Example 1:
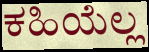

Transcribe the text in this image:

ಕಹಿಯೆಲ್ಲ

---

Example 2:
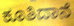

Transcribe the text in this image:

ಕೂತಿದಾನೆ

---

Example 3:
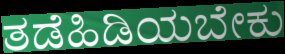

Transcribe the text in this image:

ತಡೆಹಿಡಿಯಬೇಕು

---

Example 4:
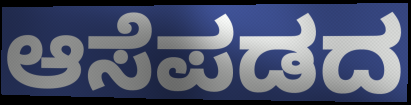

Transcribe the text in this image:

ಆಸೆಪಡದ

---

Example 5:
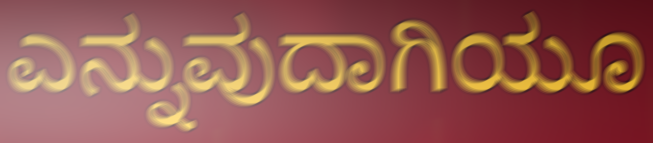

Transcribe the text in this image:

ಎನ್ನುವುದಾಗಿಯೂ